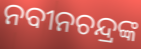
ନବୀନଚନ୍ଦ୍ରଙ୍କ